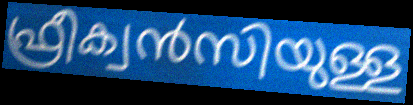
ഫ്രീക്വൻസിയുള്ള